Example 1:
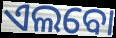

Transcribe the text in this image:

ଏଲବୋ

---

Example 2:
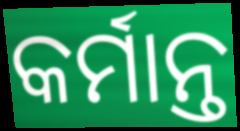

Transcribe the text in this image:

କର୍ମାନ୍ତ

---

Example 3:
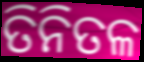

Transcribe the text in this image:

ତିନିତଳ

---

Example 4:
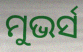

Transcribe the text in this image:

ମୁଭର୍ସ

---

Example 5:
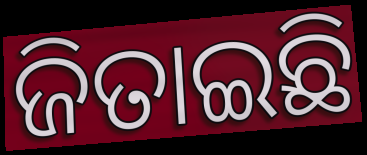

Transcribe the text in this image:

ଜିତାଇଛି